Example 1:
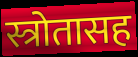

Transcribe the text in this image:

स्त्रोतासह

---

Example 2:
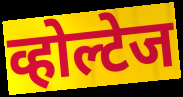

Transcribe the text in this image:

व्होल्टेज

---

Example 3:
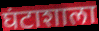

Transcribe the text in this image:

घंटाशाला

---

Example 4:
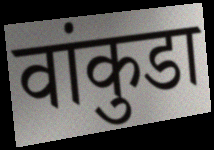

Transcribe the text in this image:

वांकुडा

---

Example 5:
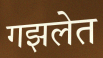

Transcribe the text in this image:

गझलेत